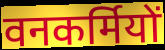
वनकर्मियों